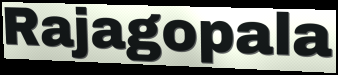
Rajagopala